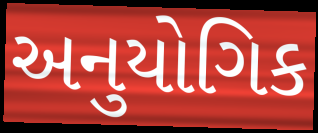
અનુયોગિક